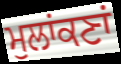
ਮੁਲਾਂਕਣਾਂ